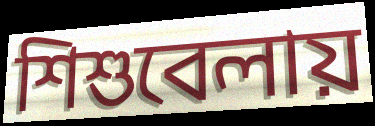
শিশুবেলায়